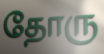
தோரு